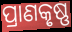
ପ୍ରାଣକୃଷ୍ଣ